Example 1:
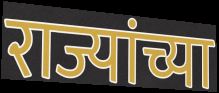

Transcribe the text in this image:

राज्यांच्या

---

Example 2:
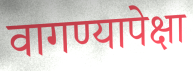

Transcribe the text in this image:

वागण्यापेक्षा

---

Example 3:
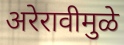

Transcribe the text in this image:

अरेरावीमुळे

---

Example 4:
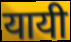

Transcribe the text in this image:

यायी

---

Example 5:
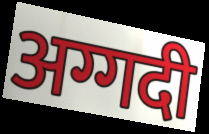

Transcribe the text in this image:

अग्गदी